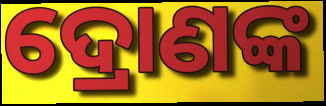
ଦ୍ରୋଣଙ୍କ